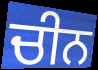
ਚੀਨ